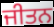
ਜੀਤਨ